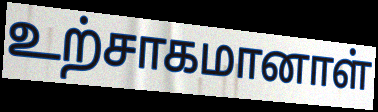
உற்சாகமானாள்